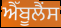
ਐੱਬੂਲੈਂਸ